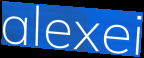
alexei